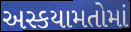
અસ્કયામતોમાં